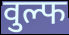
वुल्फ